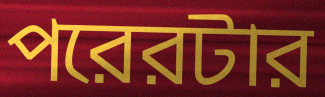
পরেরটার